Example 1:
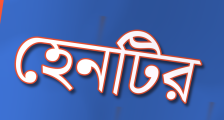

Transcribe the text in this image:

হেনটির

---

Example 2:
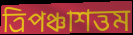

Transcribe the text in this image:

ত্রিপঞ্চাশত্তম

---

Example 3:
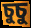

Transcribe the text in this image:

চুচু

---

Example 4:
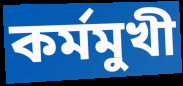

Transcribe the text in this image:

কর্মমুখী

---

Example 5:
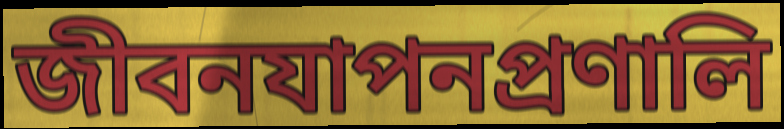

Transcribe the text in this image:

জীবনযাপনপ্রণালি